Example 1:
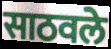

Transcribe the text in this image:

साठवले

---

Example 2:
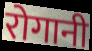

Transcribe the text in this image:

रोगानी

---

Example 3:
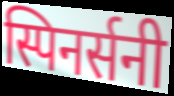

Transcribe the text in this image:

स्पिनर्सनी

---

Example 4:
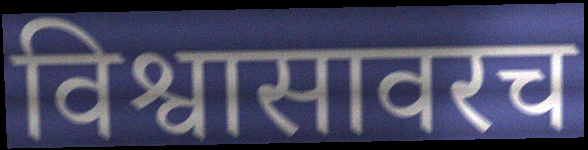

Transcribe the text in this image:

विश्वासावरच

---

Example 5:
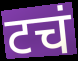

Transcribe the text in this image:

टचं